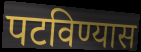
पटविण्यास